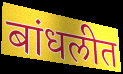
बांधलीत